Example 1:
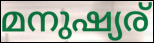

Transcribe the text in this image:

മനുഷ്യര്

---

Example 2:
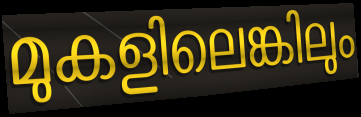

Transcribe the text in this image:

മുകളിലെങ്കിലും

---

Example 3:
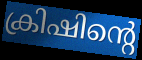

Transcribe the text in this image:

ക്രിഷിന്റെ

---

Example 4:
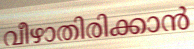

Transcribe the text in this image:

വീഴാതിരിക്കാൻ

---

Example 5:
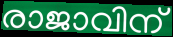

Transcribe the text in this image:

രാജാവിന്